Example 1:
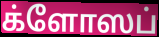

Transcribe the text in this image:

க்ளோஸப்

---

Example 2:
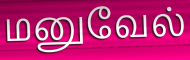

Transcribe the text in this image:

மனுவேல்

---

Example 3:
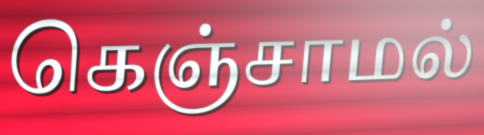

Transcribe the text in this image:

கெஞ்சாமல்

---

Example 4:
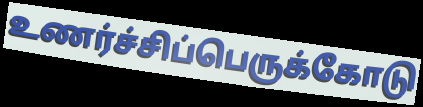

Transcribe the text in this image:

உணர்ச்சிப்பெருக்கோடு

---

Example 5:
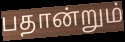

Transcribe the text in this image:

பதான்றும்